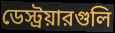
ডেস্ট্রয়ারগুলি